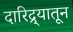
दारिद्र्यातून